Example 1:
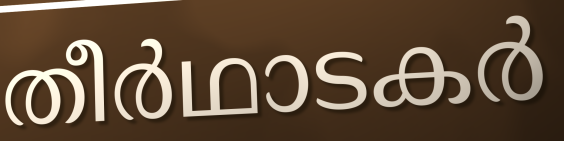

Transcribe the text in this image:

തീർഥാടകർ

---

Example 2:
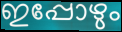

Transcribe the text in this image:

ഇപ്പോഴും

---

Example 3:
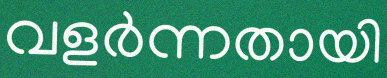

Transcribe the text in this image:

വളർന്നതായി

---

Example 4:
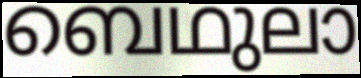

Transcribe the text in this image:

ബെഥുലാ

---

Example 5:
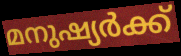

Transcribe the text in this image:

മനുഷ്യർക്ക്